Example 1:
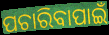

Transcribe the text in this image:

ପଚାରିବାପାଇଁ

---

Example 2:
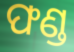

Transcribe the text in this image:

ଫଣ୍ଡ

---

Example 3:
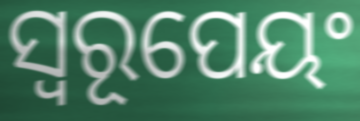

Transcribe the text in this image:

ସ୍ୱରୂପେୟଂ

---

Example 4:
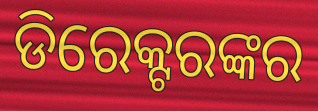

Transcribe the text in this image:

ଡିରେକ୍ଟରଙ୍କର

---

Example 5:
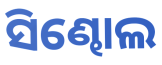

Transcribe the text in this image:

ସିଣ୍ଢୋଲ